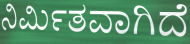
ನಿರ್ಮಿತವಾಗಿದೆ